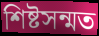
শিষ্টসন্মত